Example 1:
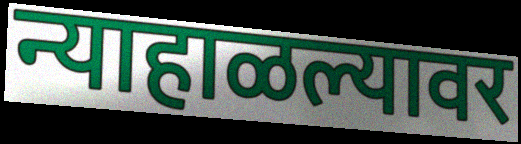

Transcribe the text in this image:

न्याहाळल्यावर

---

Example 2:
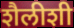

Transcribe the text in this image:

शैलीशी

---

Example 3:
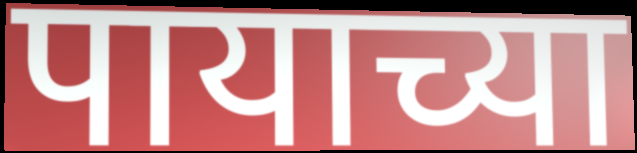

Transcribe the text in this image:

पायाच्या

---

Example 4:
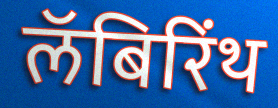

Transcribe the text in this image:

लॅबिरिंथ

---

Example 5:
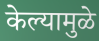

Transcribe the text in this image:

केल्यामुळे